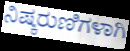
ನಿಷ್ಕರುಣಿಗಳಾಗಿ